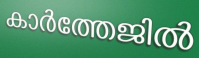
കാർത്തേജിൽ